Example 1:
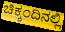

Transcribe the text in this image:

ಚಿಕ್ಕಂದಿನಲ್ಲಿ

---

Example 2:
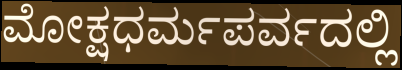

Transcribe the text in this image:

ಮೋಕ್ಷಧರ್ಮಪರ್ವದಲ್ಲಿ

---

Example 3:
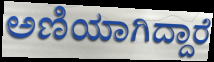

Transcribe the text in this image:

ಅಣಿಯಾಗಿದ್ದಾರೆ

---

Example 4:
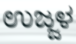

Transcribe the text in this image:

ಉಜ್ಜಳ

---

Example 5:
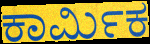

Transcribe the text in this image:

ಕಾರ್ಮಿಕ